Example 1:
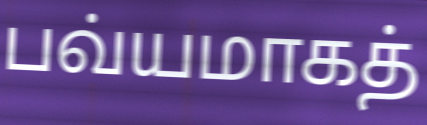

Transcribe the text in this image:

பவ்யமாகத்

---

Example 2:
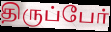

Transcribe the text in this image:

திருப்பேர்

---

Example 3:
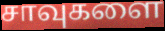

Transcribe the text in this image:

சாவுகளை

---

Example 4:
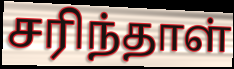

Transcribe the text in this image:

சரிந்தாள்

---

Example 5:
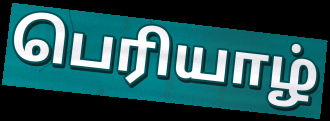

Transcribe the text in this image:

பெரியாழ்